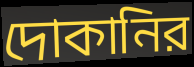
দোকানির